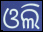
ଓଲି